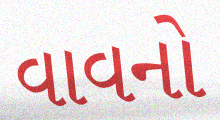
વાવનો